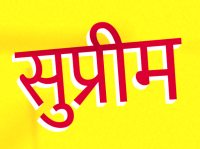
सुप्रीम